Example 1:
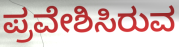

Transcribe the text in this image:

ಪ್ರವೇಶಿಸಿರುವ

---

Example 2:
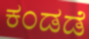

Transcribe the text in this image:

ಕಂಡಡೆ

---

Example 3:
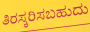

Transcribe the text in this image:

ತಿರಸ್ಕರಿಸಬಹುದು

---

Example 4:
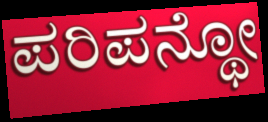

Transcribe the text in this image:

ಪರಿಪನ್ಥೋ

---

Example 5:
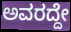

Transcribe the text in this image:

ಅವರದ್ದೇ